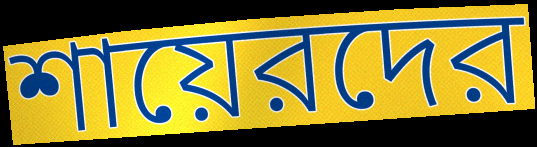
শায়েরদের